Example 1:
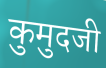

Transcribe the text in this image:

कुमुदजी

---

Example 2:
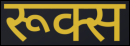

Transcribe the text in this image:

रूक्स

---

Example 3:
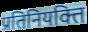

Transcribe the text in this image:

प्रतिनियक्ति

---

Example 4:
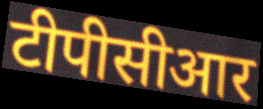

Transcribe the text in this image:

टीपीसीआर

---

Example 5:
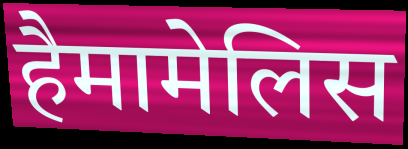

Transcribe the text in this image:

हैमामेलिस